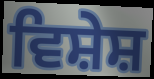
ਵਿਸ਼ੇਸ਼